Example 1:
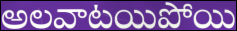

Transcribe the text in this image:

అలవాటయిపోయి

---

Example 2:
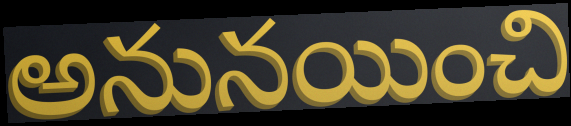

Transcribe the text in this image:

అనునయించి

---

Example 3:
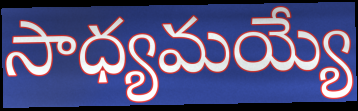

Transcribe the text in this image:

సాధ్యమయ్యే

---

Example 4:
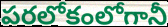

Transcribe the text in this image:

పరలోకంలోగానీ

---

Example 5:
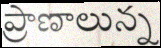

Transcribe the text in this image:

ప్రాణాలున్న